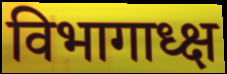
विभागाध्क्ष